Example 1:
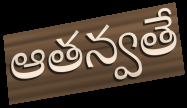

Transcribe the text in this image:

ఆతన్వతే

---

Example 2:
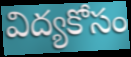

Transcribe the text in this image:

విద్యకోసం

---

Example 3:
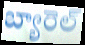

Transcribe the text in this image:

బ్యారెల్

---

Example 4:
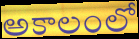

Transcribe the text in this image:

అకాలంలో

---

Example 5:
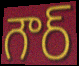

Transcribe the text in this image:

గౌర్